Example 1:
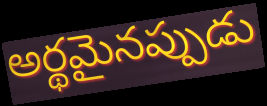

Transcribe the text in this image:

అర్థమైనప్పుడు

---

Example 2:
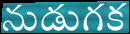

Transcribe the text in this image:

నుడుగక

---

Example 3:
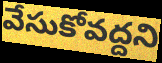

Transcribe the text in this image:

వేసుకోవద్దని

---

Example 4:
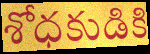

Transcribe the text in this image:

శోధకుడికి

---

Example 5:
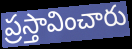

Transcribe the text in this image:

ప్రస్తావించారు